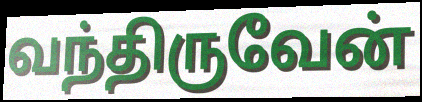
வந்திருவேன்